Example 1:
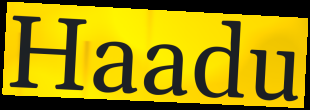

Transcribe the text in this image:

Haadu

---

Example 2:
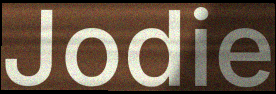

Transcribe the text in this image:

Jodie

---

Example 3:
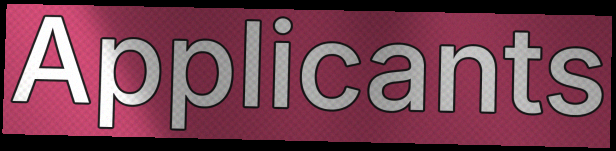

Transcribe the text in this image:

Applicants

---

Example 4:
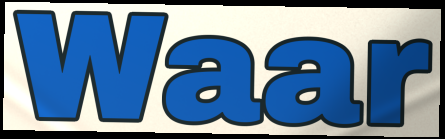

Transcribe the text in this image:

Waar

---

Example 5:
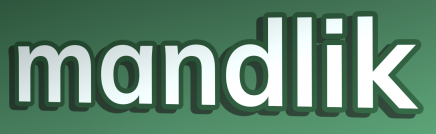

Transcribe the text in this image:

mandlik